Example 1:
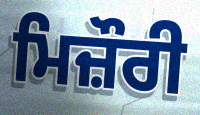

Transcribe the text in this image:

ਮਿਜ਼ੌਰੀ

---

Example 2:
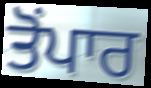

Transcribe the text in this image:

ਤੋਂਪਾਰ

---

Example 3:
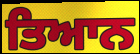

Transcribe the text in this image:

ਤਿਆਨ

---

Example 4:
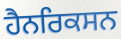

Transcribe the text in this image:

ਹੈਨਰਿਕਸਨ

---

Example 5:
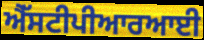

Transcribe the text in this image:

ਐੱਸਟੀਪੀਆਰਆਈ